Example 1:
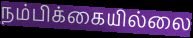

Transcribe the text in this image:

நம்பிக்கையில்லை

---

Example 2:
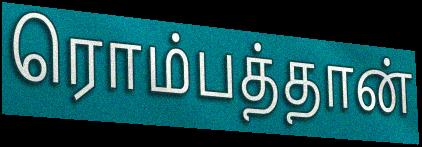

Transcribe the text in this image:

ரொம்பத்தான்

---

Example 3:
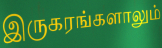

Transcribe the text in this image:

இருகரங்களாலும்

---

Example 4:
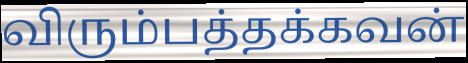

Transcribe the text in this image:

விரும்பத்தக்கவன்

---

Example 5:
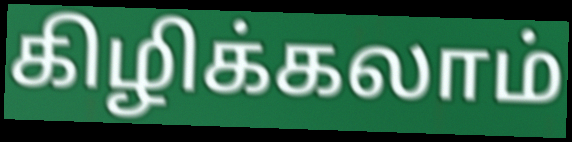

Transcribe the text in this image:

கிழிக்கலாம்